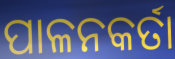
ପାଳନକର୍ତା